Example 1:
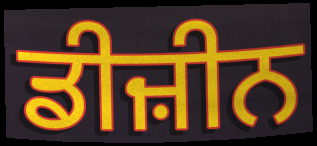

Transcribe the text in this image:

ਡੀਜ਼ੀਨ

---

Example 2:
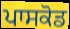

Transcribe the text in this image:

ਪਾਸਕੋਡ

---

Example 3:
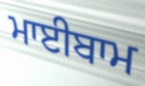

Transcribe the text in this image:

ਮਾਈਬਾਮ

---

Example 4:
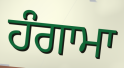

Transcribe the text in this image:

ਹੰਗਾਮਾ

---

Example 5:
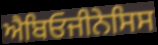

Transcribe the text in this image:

ਐਬਿਓਜੀਨੇਸਿਸ